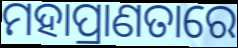
ମହାପ୍ରାଣତାରେ